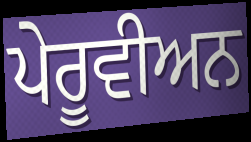
ਪੇਰੂਵੀਅਨ